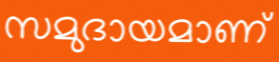
സമുദായമാണ്